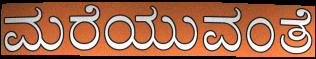
ಮರೆಯುವಂತೆ